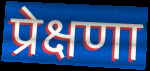
प्रेक्षणा